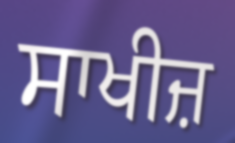
ਸਾਖੀਜ਼